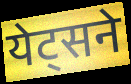
येट्सने